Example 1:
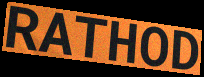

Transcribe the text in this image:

RATHOD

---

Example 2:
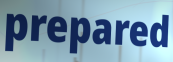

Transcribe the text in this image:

prepared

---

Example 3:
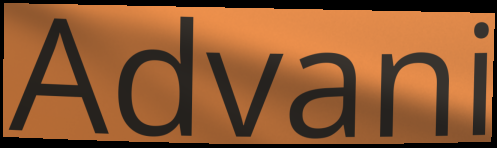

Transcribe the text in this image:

Advani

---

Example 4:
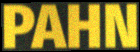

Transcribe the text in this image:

PAHN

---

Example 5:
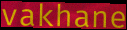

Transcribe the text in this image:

vakhane